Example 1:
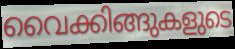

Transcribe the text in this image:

വൈക്കിങ്ങുകളുടെ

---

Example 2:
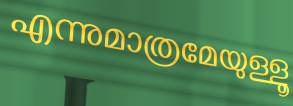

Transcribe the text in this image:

എന്നുമാത്രമേയുള്ളൂ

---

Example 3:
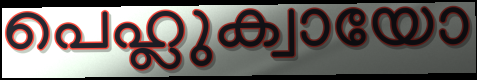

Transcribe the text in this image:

പെഹ്ലുക്വായോ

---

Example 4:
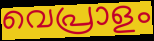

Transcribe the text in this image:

വെപ്രാളം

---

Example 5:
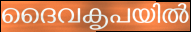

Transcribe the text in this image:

ദൈവകൃപയിൽ